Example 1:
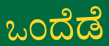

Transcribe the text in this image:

ಒಂದೆಡೆ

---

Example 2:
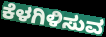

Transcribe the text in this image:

ಕೆಳಗಿಳಿಸುವ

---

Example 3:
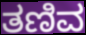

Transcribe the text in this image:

ತಣಿವ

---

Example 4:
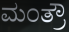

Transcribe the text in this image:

ಮಂತ್ರೌ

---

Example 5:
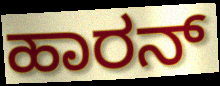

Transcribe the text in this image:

ಹಾರನ್